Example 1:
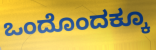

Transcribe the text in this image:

ಒಂದೊಂದಕ್ಕೂ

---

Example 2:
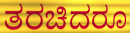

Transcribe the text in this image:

ತರಚಿದರೂ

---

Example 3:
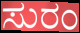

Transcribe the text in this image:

ಸುರಂ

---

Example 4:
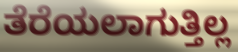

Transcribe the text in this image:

ತೆರೆಯಲಾಗುತ್ತಿಲ್ಲ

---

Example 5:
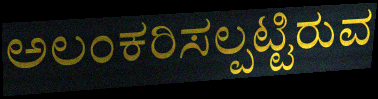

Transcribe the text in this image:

ಅಲಂಕರಿಸಲ್ಪಟ್ಟಿರುವ